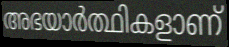
അഭയാർത്ഥികളാണ്